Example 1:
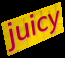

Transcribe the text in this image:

juicy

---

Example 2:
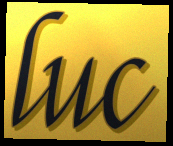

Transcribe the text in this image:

luc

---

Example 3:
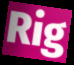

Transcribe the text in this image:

Rig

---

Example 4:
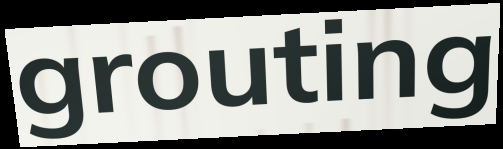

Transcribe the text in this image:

grouting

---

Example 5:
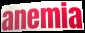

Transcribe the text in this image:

anemia